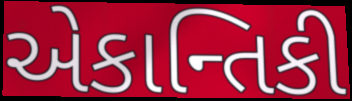
એકાન્તિકી